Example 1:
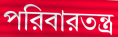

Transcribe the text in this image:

পরিবারতন্ত্র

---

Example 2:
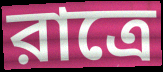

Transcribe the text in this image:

রাত্রে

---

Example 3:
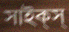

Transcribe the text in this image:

সাইক্‌স্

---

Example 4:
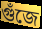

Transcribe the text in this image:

গুঁজে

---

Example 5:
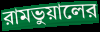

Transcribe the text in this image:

রামভুয়ালের